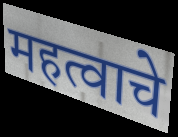
महत्वाचे